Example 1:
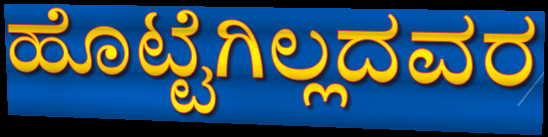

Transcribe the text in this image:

ಹೊಟ್ಟೆಗಿಲ್ಲದವರ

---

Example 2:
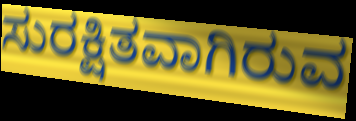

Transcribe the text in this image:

ಸುರಕ್ಷಿತವಾಗಿರುವ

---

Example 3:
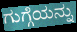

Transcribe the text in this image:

ಗುಗ್ಗೆಯನ್ನು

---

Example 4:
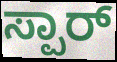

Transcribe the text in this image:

ಸ್ಪಾರ್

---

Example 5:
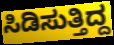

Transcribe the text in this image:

ಸಿಡಿಸುತ್ತಿದ್ದ